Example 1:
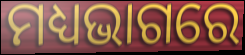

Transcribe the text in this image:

ମଧ୍ୟଭାଗରେ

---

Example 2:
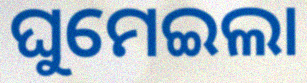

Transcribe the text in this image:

ଘୁମେଇଲା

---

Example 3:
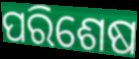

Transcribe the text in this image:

ପରିଶେଷ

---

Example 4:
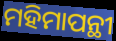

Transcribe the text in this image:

ମହିମାପନ୍ଥୀ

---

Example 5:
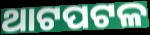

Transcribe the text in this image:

ଥାଟପଟଳ